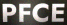
PFCE